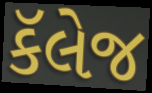
કૅલેજ